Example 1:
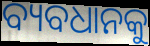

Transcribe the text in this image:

ବ୍ୟବଧାନକୁ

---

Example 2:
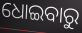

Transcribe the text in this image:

ଧୋଇବାରୁ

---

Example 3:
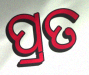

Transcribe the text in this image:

ପ୍ରତ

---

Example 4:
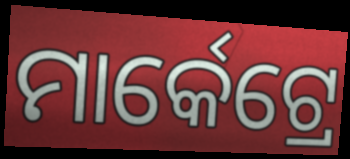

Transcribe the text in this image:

ମାର୍କେଟ୍ରେ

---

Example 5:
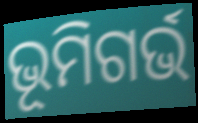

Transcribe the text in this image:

ଭୂମିଗର୍ଭ